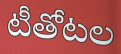
టీతోటల